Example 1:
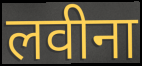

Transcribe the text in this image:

लवीना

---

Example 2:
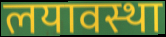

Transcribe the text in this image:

लयावस्था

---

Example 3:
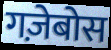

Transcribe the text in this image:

गज़ेबोस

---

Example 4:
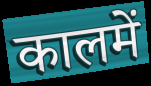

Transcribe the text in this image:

कालमें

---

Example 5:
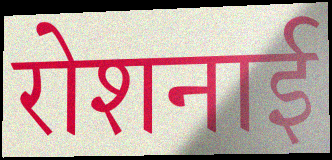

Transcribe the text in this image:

रोशनाई